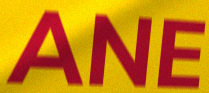
ANE